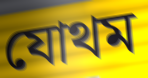
যোথম